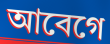
আবেগে